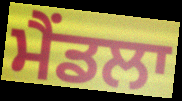
ਮੈਂਡਲਾ